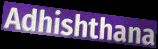
Adhishthana